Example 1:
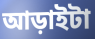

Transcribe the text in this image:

আড়াইটা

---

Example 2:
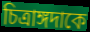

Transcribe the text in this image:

চিত্রাঙ্গদাকে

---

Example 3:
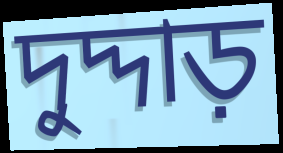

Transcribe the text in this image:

দুদ্দাড়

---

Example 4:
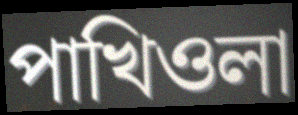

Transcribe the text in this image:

পাখিওলা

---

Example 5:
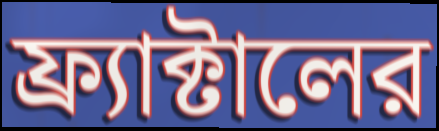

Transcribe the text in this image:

ফ্র্যাক্টালের